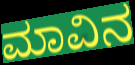
ಮಾವಿನ